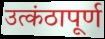
उत्कंठापूर्ण